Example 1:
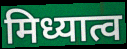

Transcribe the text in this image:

मिध्यात्व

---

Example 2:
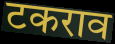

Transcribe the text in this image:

टकराव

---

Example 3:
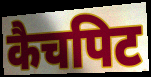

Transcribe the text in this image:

कैचपिट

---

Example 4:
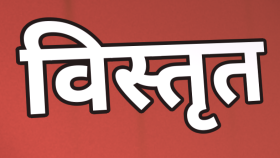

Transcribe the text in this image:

विस्तृत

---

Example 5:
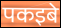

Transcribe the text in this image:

पकइबे